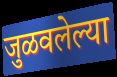
जुळवलेल्या